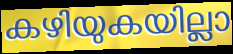
കഴിയുകയില്ലാ